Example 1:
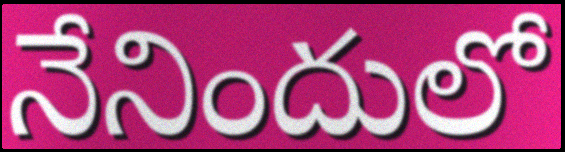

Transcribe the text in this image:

నేనిందులో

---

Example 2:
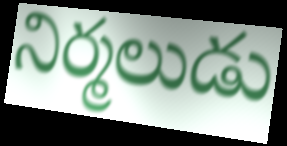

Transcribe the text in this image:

నిర్మలుడు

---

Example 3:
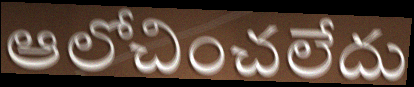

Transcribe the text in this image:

ఆలోచించలేదు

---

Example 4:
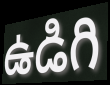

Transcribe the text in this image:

ఉడిగి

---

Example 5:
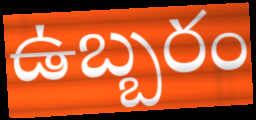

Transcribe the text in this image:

ఉబ్బరం